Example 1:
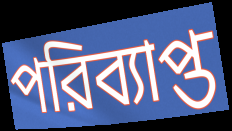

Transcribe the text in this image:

পরিব্যাপ্ত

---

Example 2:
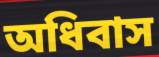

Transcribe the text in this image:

অধিবাস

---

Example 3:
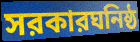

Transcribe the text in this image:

সরকারঘনিষ্ঠ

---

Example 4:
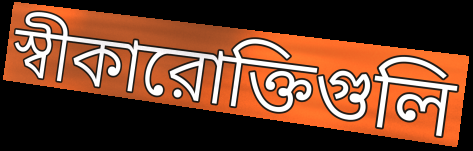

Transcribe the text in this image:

স্বীকারোক্তিগুলি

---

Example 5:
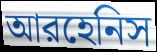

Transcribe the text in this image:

আরহেনিস